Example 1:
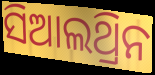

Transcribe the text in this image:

ସିଆଲଥ୍ରିନ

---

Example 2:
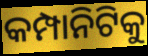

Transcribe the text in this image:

କମ୍ପାନିଟିକୁ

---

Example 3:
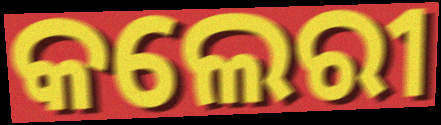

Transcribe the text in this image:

କଲେରୀ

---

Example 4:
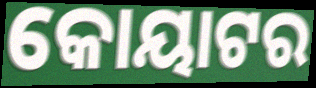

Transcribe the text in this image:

କୋୟାଟର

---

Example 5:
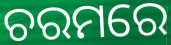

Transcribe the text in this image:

ଚରମରେ